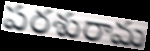
పరశురామ